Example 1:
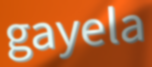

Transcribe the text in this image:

gayela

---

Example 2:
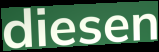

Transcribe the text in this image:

diesen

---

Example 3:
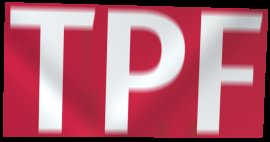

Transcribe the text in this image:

TPF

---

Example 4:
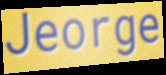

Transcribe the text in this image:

Jeorge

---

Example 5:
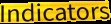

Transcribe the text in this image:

Indicators